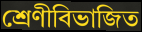
শ্রেণীবিভাজিত